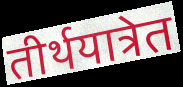
तीर्थयात्रेत